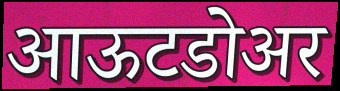
आऊटडोअर